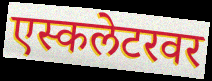
एस्कलेटरवर